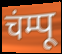
चंम्पू